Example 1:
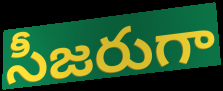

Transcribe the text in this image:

సీజరుగా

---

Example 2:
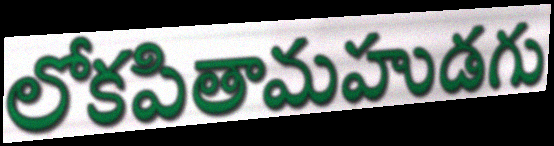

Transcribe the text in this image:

లోకపితామహుడగు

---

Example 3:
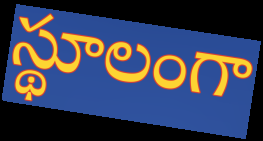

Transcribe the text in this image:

స్థూలంగా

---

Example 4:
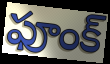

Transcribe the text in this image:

ఫూంక్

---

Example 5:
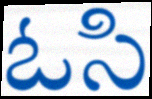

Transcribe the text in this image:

ఓసి